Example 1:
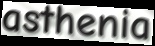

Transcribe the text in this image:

asthenia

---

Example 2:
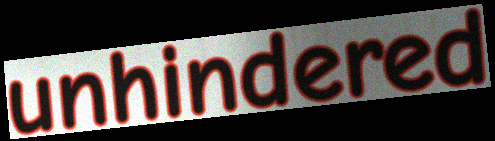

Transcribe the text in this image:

unhindered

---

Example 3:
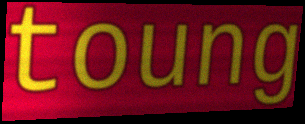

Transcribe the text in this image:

toung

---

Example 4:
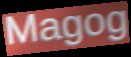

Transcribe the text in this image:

Magog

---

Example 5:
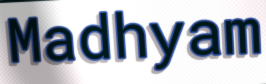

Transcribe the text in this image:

Madhyam